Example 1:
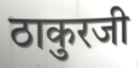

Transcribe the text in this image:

ठाकुरजी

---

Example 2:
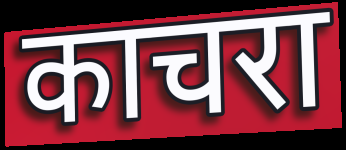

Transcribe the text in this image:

काचरा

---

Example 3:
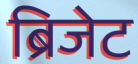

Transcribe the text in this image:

ब्रिजेट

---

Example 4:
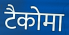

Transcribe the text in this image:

टैकोमा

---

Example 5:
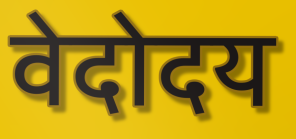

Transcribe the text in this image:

वेदोदय